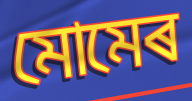
মোমেৰ